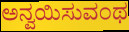
ಅನ್ವಯಿಸುವಂಥ